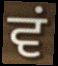
ਵਂ